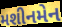
મશીનમેન